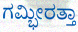
ಗಮ್ಭೀರತ್ತಾ